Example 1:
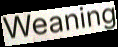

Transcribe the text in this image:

Weaning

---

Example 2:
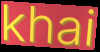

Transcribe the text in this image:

khai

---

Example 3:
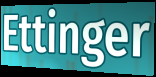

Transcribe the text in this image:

Ettinger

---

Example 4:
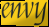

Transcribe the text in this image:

envy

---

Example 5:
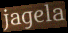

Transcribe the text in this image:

jagela